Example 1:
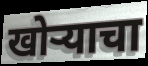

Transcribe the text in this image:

खोर्‍याचा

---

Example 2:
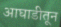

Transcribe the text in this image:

आघाडीतून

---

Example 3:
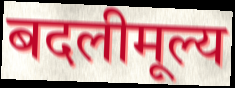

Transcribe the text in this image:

बदलीमूल्य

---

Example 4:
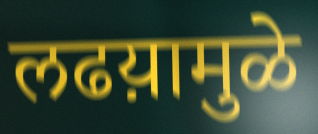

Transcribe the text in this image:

लढय़ामुळे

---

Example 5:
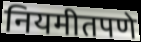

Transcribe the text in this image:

नियमीतपणे